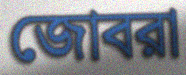
জোবরা